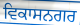
ਵਿਕਾਸਨਗਰ